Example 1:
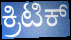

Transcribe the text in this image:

ಕ್ರಿಟಿಕ್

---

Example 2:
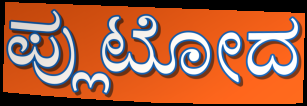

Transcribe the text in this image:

ಪ್ಲುಟೋದ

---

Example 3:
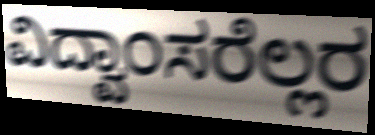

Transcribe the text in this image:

ವಿದ್ವಾಂಸರೆಲ್ಲರ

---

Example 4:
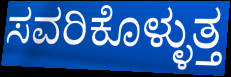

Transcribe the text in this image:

ಸವರಿಕೊಳ್ಳುತ್ತ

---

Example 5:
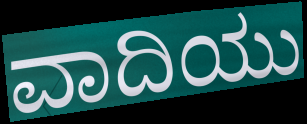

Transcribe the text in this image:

ವಾದಿಯು